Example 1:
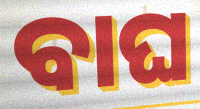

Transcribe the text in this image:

ବାଘ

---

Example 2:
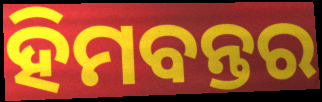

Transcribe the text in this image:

ହିମବନ୍ତର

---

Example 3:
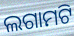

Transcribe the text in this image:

ଲଗାମଟି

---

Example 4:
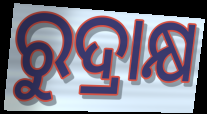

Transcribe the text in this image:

ରୁଦ୍ରାକ୍ଷ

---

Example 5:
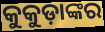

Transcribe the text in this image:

କୁକୁଡ଼ାଙ୍କର